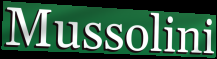
Mussolini